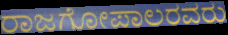
ರಾಜಗೋಪಾಲರವರು